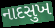
નાદસુખ